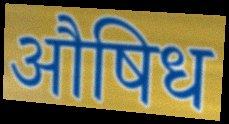
औषिध